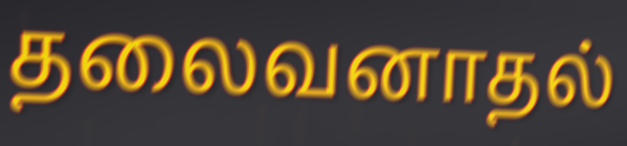
தலைவனாதல்